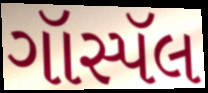
ગૉસ્પૅલ